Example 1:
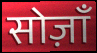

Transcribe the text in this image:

सोज़ाँ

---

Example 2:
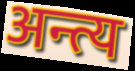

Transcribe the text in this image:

अन्त्य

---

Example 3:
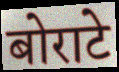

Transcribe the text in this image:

बोराटे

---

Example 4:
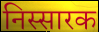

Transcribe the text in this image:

निस्सारक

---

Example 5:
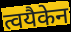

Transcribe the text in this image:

त्वयैकेन